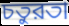
চতুরতা